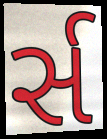
ર્સ